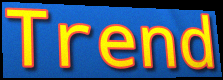
Trend